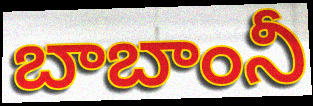
బాబాంనీ